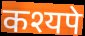
कश्यपे